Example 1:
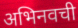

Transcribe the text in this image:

अभिनवची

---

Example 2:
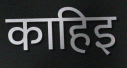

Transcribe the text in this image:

काहिइ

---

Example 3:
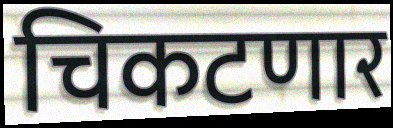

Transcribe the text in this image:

चिकटणार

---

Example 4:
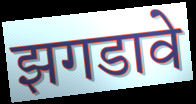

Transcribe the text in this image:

झगडावे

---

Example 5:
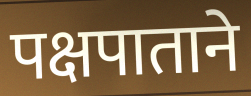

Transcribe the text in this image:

पक्षपाताने